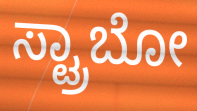
ಸ್ಟ್ರಾಬೋ